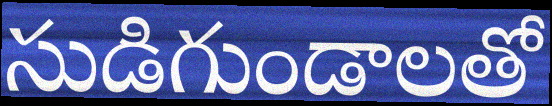
సుడిగుండాలతో